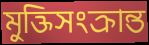
মুক্তিসংক্রান্ত